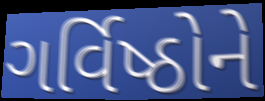
ગર્વિષ્ઠોને